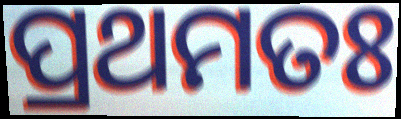
ପ୍ରଥମତଃ